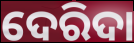
ଦେରିଦା